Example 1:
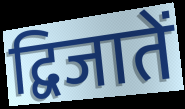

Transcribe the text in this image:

द्विजातें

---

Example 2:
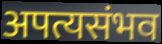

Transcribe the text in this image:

अपत्यसंभव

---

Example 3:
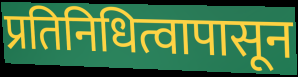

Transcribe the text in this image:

प्रतिनिधित्वापासून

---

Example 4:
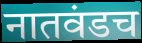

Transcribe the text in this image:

नातवंडच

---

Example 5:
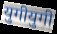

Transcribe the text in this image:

युगीयुगी